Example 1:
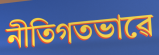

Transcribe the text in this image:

নীতিগতভাৱে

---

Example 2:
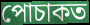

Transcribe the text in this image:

পোচাকত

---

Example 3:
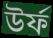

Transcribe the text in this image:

উৰ্ফ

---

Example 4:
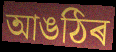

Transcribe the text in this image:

আঙঠিৰ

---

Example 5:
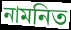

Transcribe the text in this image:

নামনিত